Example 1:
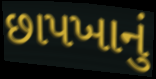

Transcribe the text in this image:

છાપખાનું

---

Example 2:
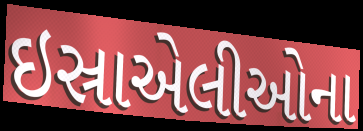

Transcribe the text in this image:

ઇસ્રાએલીઓના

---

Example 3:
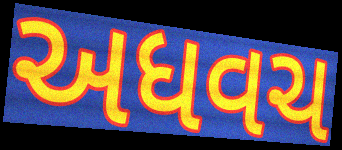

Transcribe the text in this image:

અધવચ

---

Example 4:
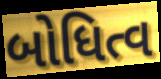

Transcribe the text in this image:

બોધિત્વ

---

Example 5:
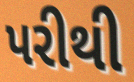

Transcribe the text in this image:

પરીથી